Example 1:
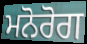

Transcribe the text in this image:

ਮਨੋਰੋਗ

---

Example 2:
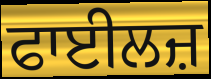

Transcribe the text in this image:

ਫਾਈਲਜ਼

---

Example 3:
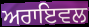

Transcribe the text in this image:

ਅਰਾਇਵਲ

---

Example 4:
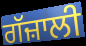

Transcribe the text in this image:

ਗੱਜ਼ਾਲੀ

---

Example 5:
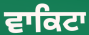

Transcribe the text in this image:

ਵਾਕਿਟਾ